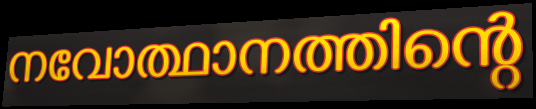
നവോത്ഥാനത്തിന്റെ